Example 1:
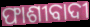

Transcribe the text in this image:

ଫାଶୀବାଦୀ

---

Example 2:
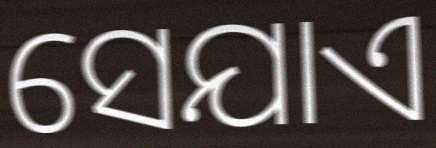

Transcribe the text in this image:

ସେଯାଏ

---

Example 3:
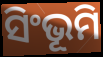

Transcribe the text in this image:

ସିଂଭୂମି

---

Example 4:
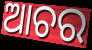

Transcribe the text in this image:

ଆଚର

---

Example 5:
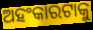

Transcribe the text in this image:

ଅହଂକାରଟାକୁ